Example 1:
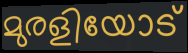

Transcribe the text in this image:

മുരളിയോട്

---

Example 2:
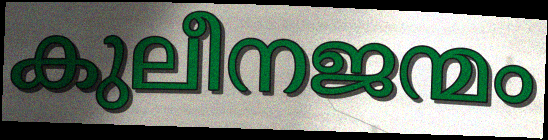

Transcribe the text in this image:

കുലീനജന്മം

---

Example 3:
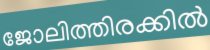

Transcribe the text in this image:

ജോലിത്തിരക്കിൽ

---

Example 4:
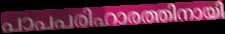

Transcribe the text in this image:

പാപപരിഹാരത്തിനായി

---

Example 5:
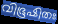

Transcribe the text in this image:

വിഭൂഷിതഃ